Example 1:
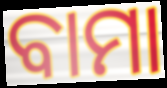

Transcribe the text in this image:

ବାମା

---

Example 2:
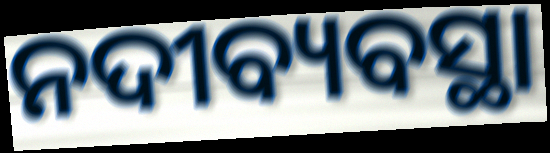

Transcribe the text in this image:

ନଦୀବ୍ୟବସ୍ଥା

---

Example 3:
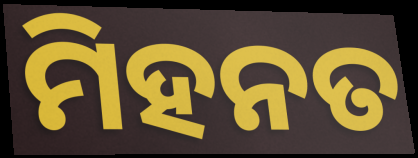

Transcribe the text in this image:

ମିହନତ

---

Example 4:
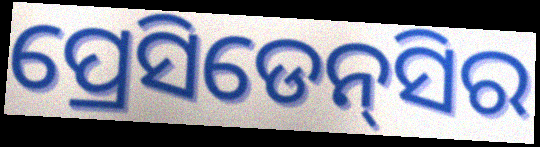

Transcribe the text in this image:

ପ୍ରେସିଡେନ୍‌ସିର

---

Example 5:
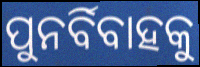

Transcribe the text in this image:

ପୁନର୍ବିବାହକୁ